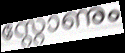
സ്റ്റോണും